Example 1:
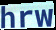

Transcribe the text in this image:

hrw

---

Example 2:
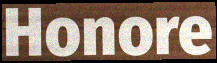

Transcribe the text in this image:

Honore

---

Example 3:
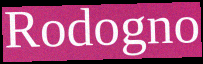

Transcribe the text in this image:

Rodogno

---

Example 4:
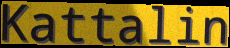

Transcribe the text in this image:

Kattalin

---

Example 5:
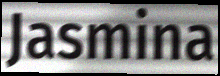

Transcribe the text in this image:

Jasmina